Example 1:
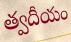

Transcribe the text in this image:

త్వదీయం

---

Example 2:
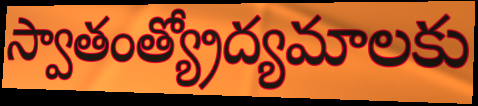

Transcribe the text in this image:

స్వాతంత్య్రోద్యమాలకు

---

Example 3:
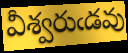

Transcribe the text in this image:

వీశ్వరుఁడవు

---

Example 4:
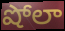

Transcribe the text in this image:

షోలా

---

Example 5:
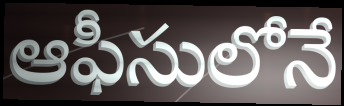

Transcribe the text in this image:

ఆఫీసులోనే